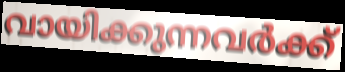
വായിക്കുന്നവർക്ക്